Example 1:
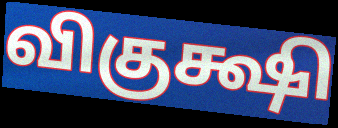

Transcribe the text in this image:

விகுக்ஷி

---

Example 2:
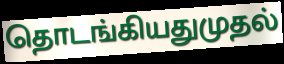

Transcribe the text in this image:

தொடங்கியதுமுதல்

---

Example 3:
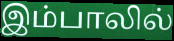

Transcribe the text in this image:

இம்பாலில்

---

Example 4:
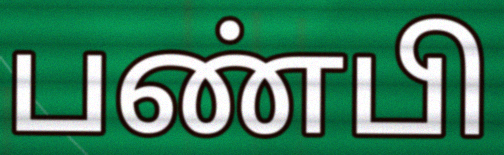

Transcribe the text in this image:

பண்பி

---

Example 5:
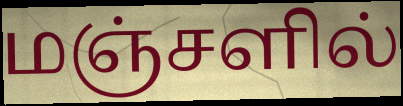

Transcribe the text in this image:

மஞ்சளில்